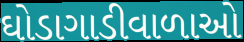
ઘોડાગાડીવાળાઓ